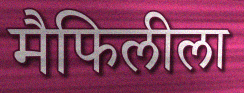
मैफिलीला